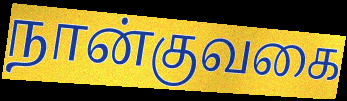
நான்குவகை